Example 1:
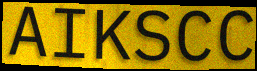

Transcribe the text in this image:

AIKSCC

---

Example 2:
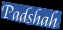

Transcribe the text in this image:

Padshah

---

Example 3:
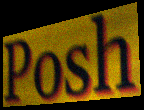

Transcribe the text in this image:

Posh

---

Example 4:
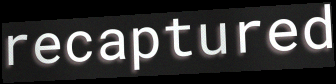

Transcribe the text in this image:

recaptured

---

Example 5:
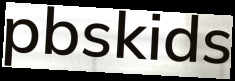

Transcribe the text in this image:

pbskids